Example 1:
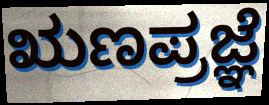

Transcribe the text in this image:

ಋಣಪ್ರಜ್ಞೆ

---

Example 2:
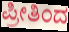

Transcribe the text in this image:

ಪ್ರೀತಿಂದ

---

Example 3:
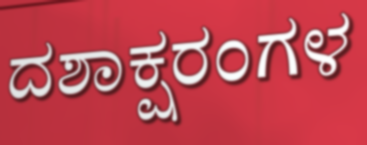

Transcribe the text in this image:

ದಶಾಕ್ಷರಂಗಳ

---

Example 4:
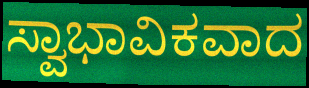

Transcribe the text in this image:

ಸ್ವಾಭಾವಿಕವಾದ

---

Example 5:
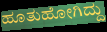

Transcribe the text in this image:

ಹೂತುಹೋಗಿದ್ದು